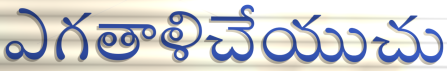
ఎగతాళిచేయుచు